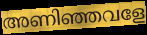
അണിഞ്ഞവളേ